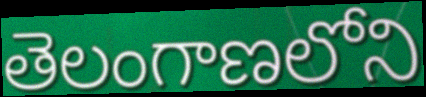
తెలంగాణలోని